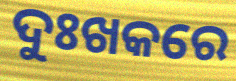
ଦୁଃଖକରେ